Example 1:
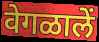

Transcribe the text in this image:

वेगळालें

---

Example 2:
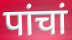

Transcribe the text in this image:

पांचां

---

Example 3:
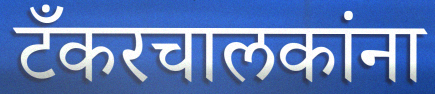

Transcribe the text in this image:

टँकरचालकांना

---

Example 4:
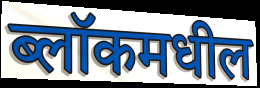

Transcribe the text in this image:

ब्लॉकमधील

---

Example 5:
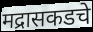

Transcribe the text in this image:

मद्रासकडचे